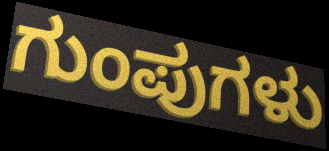
ಗುಂಪುಗಳು